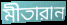
মীতারান